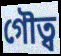
গৌত্ব